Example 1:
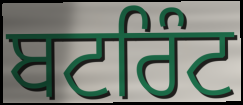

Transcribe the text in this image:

ਬਟਰਿੰਟ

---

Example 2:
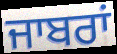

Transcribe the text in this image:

ਜਾਬਰਾਂ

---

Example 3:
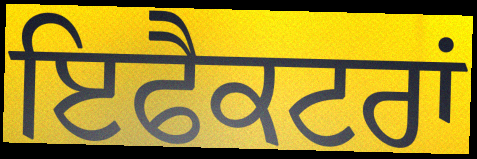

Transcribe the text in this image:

ਇਫੈਕਟਰਾਂ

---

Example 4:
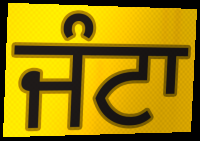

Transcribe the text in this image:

ਜੰਟਾ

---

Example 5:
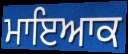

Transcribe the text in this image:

ਮਾਇਆਕ